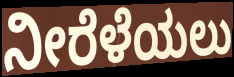
ನೀರೆಳೆಯಲು